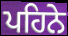
ਪਹਿਨੇ